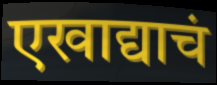
एखाद्याचं